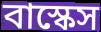
বাস্কেস